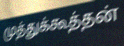
முத்துக்கூத்தன்